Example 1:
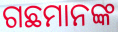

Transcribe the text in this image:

ଗଛମାନଙ୍କ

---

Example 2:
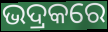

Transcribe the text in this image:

ଭଦ୍ରକରେ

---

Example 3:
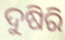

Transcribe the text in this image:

ଦୁଷିରି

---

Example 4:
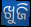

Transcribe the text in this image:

ଖୁଜି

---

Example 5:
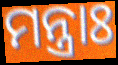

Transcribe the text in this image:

ମନ୍ତ୍ରାଃ